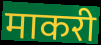
माकरी